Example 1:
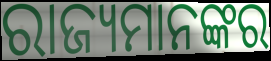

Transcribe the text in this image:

ରାଜ୍ୟମାନଙ୍କର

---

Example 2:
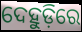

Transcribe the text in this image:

ଦେହୁଡ଼ିରେ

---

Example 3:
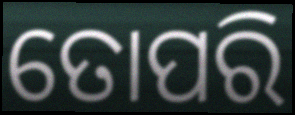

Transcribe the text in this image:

ତୋପରି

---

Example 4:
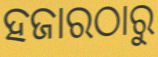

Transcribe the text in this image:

ହଜାରଠାରୁ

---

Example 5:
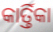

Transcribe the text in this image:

କାର୍ତ୍ତିକା